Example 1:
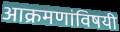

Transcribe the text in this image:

आक्रमणांविषयी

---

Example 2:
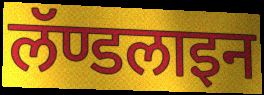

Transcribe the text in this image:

लॅण्डलाइन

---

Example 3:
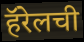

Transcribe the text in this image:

हॅरेलची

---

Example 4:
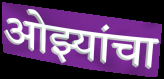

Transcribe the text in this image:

ओझ्यांचा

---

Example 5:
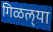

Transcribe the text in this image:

गिळल्या